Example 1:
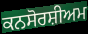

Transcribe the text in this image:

ਕਨਸੋਰਸ਼ੀਅਮ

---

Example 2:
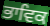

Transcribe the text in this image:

ਭਾਵਿਕ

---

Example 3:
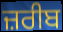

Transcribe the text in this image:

ਜ਼ਰੀਬ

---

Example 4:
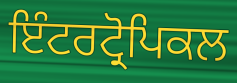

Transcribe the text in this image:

ਇੰਟਰਟ੍ਰੋਪਿਕਲ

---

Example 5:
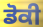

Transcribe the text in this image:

ਡੋਕੀ